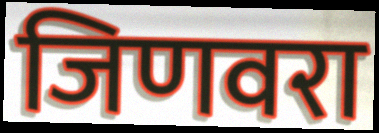
जिणवरा